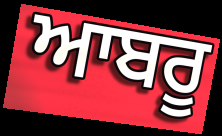
ਆਬਰੂ